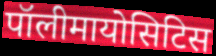
पॉलीमायोसिटिस